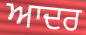
ਆਦਰ